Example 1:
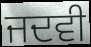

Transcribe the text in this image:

ਜਦਵੀ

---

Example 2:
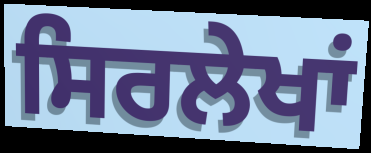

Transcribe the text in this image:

ਸਿਰਲੇਖਾਂ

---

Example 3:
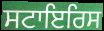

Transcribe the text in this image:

ਸਟਾਇਰਿਸ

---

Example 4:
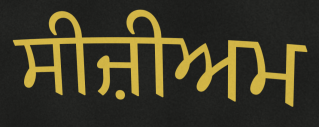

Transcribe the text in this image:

ਸੀਜ਼ੀਅਮ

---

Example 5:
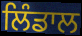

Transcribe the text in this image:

ਲਿੰਡਾਲ